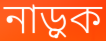
নাড়ুক